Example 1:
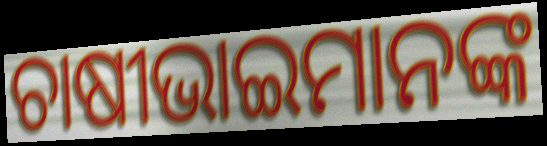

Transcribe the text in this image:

ଚାଷୀଭାଇମାନଙ୍କ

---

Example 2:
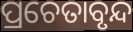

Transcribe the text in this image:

ପ୍ରଚେତାବୃନ୍ଦ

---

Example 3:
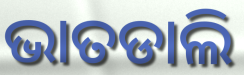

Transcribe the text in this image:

ଭାତଡାଲି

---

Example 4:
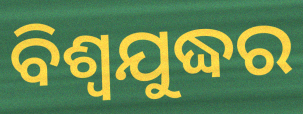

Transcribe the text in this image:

ବିଶ୍ବଯୁଦ୍ଧର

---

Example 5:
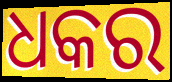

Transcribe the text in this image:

ଧକର